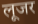
लूजर